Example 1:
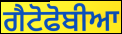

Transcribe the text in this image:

ਗੈਟੋਫੋਬੀਆ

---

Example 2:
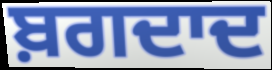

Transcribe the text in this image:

ਬ਼ਗਦਾਦ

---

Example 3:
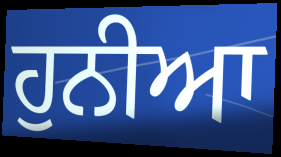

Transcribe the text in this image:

ਹੁਨੀਆ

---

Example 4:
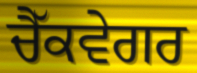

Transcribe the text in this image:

ਚੈੱਕਵੇਗਰ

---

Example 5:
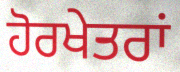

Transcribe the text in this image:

ਹੋਰਖੇਤਰਾਂ